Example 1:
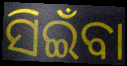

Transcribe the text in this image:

ସିଇଁବା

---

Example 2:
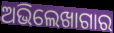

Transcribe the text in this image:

ଅଭିଲେଖାଗାର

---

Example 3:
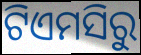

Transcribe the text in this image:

ଟିଏମସିରୁ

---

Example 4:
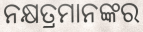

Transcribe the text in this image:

ନକ୍ଷତ୍ରମାନଙ୍କର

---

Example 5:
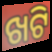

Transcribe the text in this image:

ଖଟି